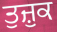
ਤੁਜ਼ੁਕ